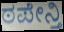
ಠಪೇನ್ತಿ